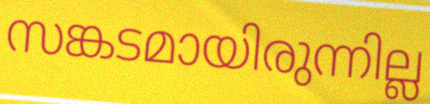
സങ്കടമായിരുന്നില്ല